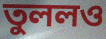
তুললও